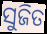
ସୁଜିତ